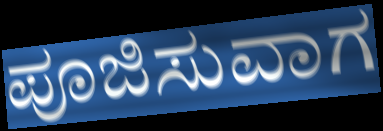
ಪೂಜಿಸುವಾಗ